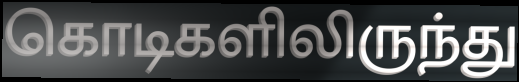
கொடிகளிலிருந்து